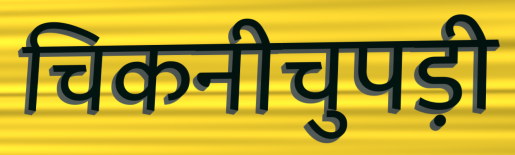
चिकनीचुपड़ी